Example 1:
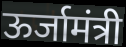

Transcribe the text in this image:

ऊर्जामंत्री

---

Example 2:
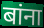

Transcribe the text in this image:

बांना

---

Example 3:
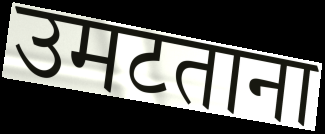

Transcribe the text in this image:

उमटताना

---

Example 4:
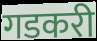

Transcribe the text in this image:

गडकरी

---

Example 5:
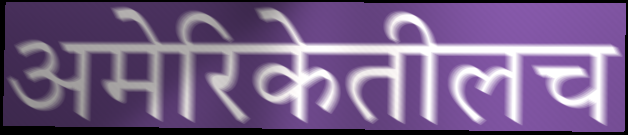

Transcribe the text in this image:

अमेरिकेतीलच